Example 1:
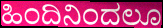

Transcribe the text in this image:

ಹಿಂದಿನಿಂದಲೂ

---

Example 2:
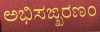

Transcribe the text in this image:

ಅಭಿಸಙ್ಖರಣಂ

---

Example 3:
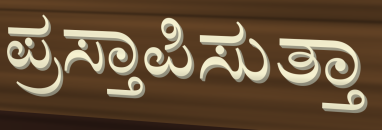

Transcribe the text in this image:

ಪ್ರಸ್ತಾಪಿಸುತ್ತಾ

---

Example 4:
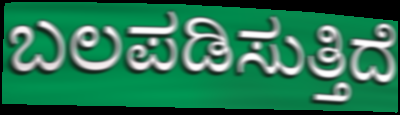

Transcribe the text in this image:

ಬಲಪಡಿಸುತ್ತಿದೆ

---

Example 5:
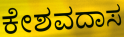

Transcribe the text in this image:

ಕೇಶವದಾಸ